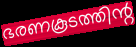
ഭരണകൂടത്തിന്റ